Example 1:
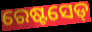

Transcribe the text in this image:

ରେଷ୍ଟସେଡ୍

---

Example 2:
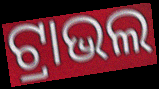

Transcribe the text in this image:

ଟ୍ରାଭଲ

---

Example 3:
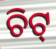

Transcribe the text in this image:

ଚିଟ୍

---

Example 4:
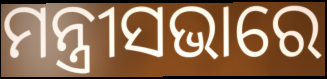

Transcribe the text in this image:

ମନ୍ତ୍ରୀସଭାରେ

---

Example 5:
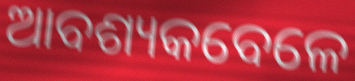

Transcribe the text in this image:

ଆବଶ୍ୟକବେଳେ